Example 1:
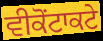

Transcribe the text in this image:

ਵੀਕੋਂਟਾਕਟੇ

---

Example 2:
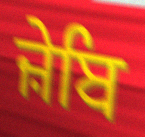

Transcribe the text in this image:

ਜ਼ੇਬਿ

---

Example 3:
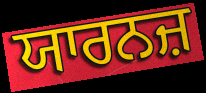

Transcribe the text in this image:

ਯਾਰਨਜ਼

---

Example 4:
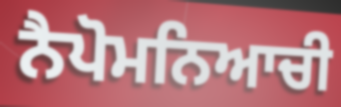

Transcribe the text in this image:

ਨੈਪੋਮਨਿਆਚੀ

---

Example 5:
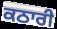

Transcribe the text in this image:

ਕਠਾਰੀ